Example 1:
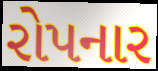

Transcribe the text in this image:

રોપનાર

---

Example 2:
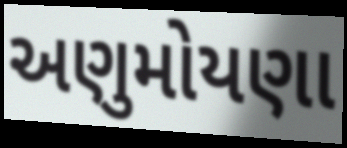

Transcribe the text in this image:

અણુમોયણા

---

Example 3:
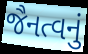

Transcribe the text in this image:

જૈનત્વનું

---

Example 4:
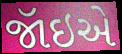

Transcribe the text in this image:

જૉઇએ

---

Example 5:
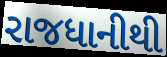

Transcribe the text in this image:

રાજધાનીથી